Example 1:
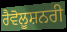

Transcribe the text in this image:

ਰੈਵੋਲੂਸ਼ਨਰੀ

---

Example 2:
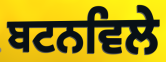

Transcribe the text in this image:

ਬਟਨਵਿਲੇ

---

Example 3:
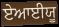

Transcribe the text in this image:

ਏਆਈਯੂ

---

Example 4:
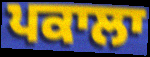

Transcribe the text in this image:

ਪਕਾਲਾ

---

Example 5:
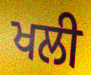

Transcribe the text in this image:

ਖਲੀ